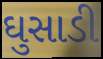
ઘુસાડી